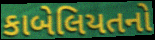
કાબેલિયતનો